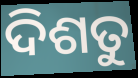
ଦିଶତୁ